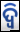
ଦ୍ଵି